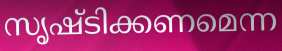
സൃഷ്ടിക്കണമെന്ന